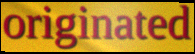
originated